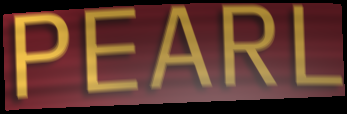
PEARL